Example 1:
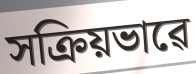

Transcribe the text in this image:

সক্ৰিয়ভাৱে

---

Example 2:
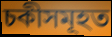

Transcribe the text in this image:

চকীসমূহত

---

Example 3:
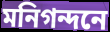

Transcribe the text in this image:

মনিগন্দনে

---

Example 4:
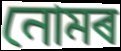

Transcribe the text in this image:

নোমৰ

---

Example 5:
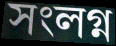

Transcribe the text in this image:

সংলগ্ন